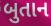
બુતાન